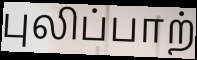
புலிப்பாற்